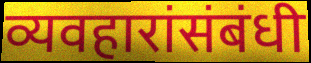
व्यवहारांसंबंधी